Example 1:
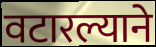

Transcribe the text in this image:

वटारल्याने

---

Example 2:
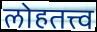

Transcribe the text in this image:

लोहतत्त्व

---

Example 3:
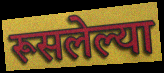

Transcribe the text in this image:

रूसलेल्या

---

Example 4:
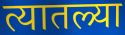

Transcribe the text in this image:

त्यातल्या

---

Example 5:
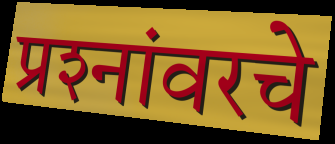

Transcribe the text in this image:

प्रश्नांवरचे